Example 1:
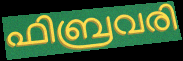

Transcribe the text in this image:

ഫിബ്രവരി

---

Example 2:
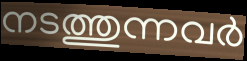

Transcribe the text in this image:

നടത്തുന്നവർ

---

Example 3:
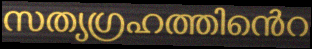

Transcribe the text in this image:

സത്യഗ്രഹത്തിൻെറ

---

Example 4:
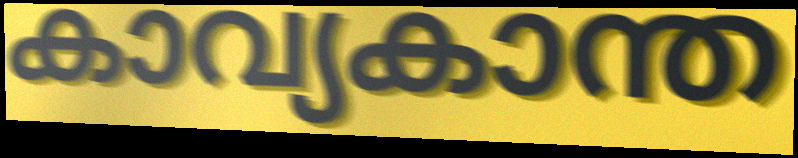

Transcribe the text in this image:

കാവ്യകാന്ത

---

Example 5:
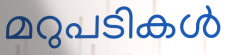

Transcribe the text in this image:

മറുപടികൾ